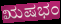
ಋಷಭಂ